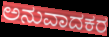
ಅನುವಾದಕರ